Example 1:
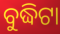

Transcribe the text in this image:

ବୁଦ୍ଧିଟା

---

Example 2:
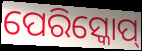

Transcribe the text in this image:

ପେରିସ୍କୋପ୍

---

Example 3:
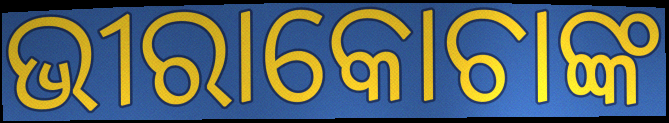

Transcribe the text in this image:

ଭୀରାକୋଚାଙ୍କ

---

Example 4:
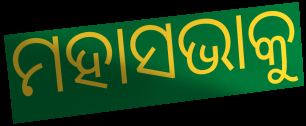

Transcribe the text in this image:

ମହାସଭାକୁ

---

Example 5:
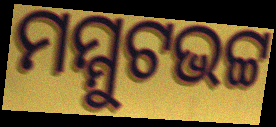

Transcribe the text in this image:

ମମ୍ମୁଟଭଟ୍ଟ